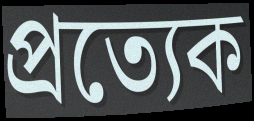
প্ৰত্যেক